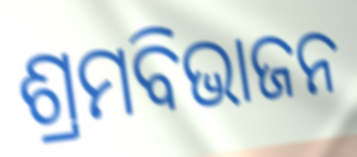
ଶ୍ରମବିଭାଜନ